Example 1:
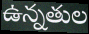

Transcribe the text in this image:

ఉన్నతుల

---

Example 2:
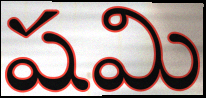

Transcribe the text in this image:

షమి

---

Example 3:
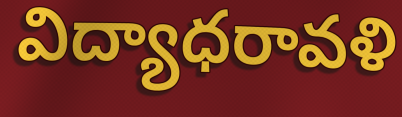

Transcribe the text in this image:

విద్యాధరావళి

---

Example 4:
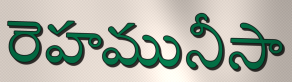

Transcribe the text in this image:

రెహమునీసా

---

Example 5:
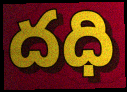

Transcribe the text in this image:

దధి